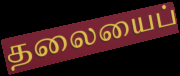
தலையைப்